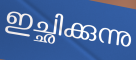
ഇച്ഛിക്കുന്നു